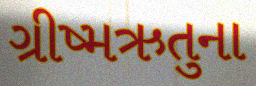
ગ્રીષ્મઋતુના